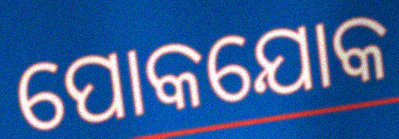
ପୋକଯୋକ